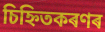
চিহ্নিতকৰণৰ